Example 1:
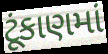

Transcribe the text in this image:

ટૂંકાણમાં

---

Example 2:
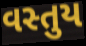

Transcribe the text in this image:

વસ્તુય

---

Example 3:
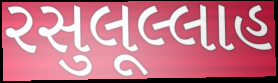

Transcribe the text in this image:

રસુલૂલ્લાહ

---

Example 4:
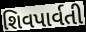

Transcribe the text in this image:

શિવપાર્વતી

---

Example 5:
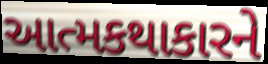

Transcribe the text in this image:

આત્મકથાકારને